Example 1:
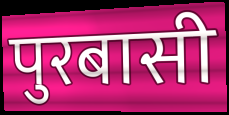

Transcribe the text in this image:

पुरबासी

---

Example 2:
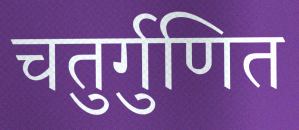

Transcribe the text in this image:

चतुर्गुणित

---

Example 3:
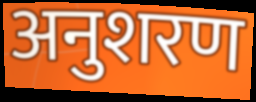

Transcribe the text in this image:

अनुशरण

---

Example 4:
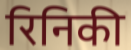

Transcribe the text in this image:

रिनिकी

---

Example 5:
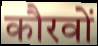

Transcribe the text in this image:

कौरवों